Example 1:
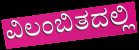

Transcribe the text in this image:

ವಿಲಂಬಿತದಲ್ಲಿ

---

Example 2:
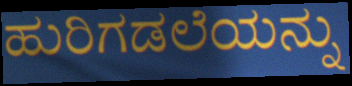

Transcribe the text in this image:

ಹುರಿಗಡಲೆಯನ್ನು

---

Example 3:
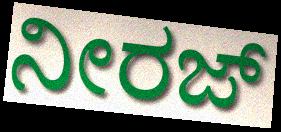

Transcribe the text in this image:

ನೀರಜ್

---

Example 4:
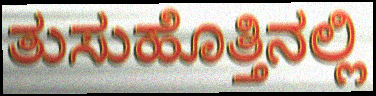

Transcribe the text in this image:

ತುಸುಹೊತ್ತಿನಲ್ಲಿ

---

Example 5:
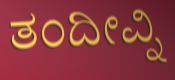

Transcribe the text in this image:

ತಂದೀವ್ನಿ